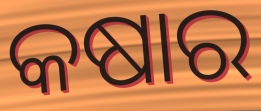
କଷାର